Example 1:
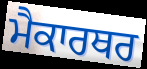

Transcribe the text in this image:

ਮੈਕਾਰਥਰ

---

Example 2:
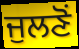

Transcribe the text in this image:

ਜੁਲਣੋਂ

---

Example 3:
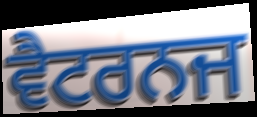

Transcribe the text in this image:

ਵੈਟਰਨਜ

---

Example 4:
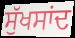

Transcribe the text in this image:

ਸੁੱਖਸਾਂਦ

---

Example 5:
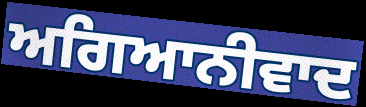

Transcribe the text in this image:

ਅਗਿਆਨੀਵਾਦ